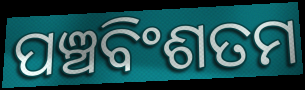
ପଞ୍ଚବିଂଶତମ